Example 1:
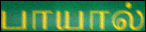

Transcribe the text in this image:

பாயால்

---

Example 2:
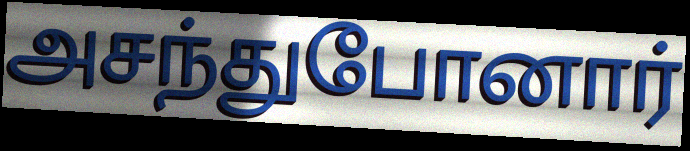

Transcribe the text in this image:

அசந்துபோனார்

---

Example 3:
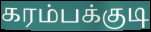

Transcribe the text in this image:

கரம்பக்குடி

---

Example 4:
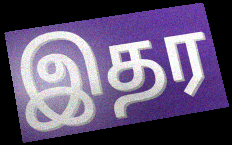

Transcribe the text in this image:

இதர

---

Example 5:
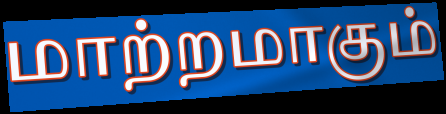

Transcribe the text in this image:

மாற்றமாகும்